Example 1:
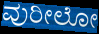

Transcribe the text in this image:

ವುರೀಲೋ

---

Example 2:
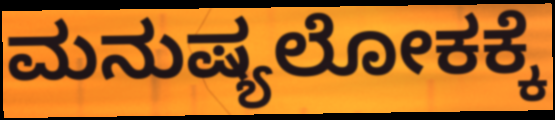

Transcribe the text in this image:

ಮನುಷ್ಯಲೋಕಕ್ಕೆ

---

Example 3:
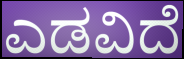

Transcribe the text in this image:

ಎಡವಿದೆ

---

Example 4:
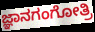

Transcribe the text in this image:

ಜ್ಞಾನಗಂಗೋತ್ರಿ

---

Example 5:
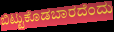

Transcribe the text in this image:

ಬಿಟ್ಟುಕೊಡಬಾರದೆಂದು